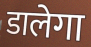
डालेगा